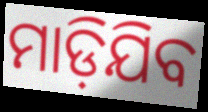
ମାଡ଼ିଯିବ